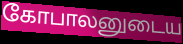
கோபாலனுடைய